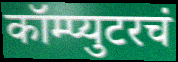
कॉम्प्युटरचं